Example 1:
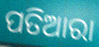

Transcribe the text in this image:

ପତିଆରା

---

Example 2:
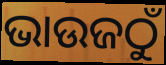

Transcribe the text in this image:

ଭାଉଜଠୁଁ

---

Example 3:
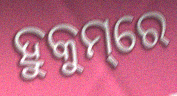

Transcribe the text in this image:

ହୁକୁମ୍‌ରେ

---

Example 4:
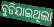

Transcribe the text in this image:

ବୁଡିଯାଇଥିଲା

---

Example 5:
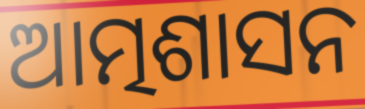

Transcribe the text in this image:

ଆତ୍ମଶାସନ